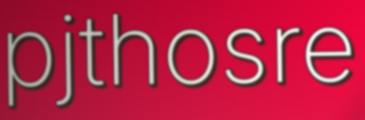
pjthosre